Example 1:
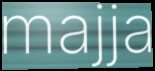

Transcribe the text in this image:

majja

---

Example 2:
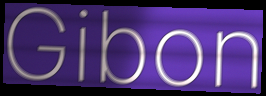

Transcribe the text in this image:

Gibon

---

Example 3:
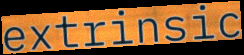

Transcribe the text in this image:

extrinsic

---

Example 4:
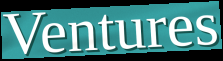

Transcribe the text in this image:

Ventures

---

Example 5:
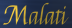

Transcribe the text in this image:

Malati